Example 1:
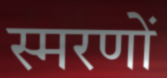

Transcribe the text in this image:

स्मरणों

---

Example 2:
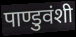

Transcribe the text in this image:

पाण्डुवंशी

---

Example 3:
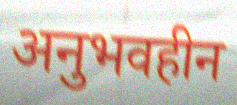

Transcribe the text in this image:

अनुभवहीन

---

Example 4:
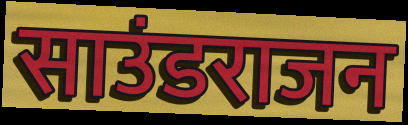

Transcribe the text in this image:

साउंडराजन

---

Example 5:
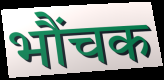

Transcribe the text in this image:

भौंचक